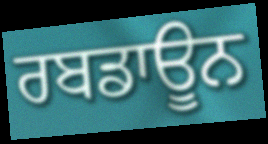
ਰਬਡਾਊਨ